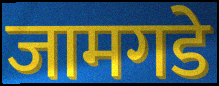
जामगडे